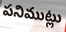
పనిముట్లు